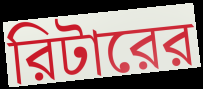
রিটারের